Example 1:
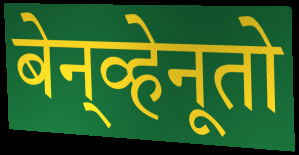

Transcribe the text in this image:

बेन्‌व्हेनूतो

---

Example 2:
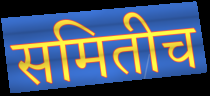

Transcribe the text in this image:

समितीच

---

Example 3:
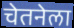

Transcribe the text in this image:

चेतनेला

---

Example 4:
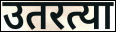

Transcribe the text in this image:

उतरत्या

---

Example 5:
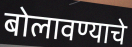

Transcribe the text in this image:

बोलावण्याचे